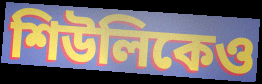
শিউলিকেও